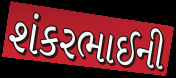
શંકરભાઈની